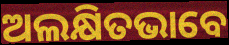
ଅଲକ୍ଷିତଭାବେ